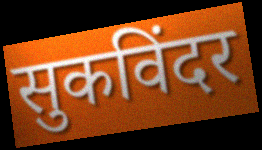
सुकविंदर